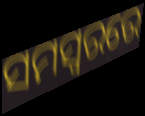
ସମସ୍ବରରେ